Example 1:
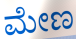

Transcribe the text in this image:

ಮೇಣ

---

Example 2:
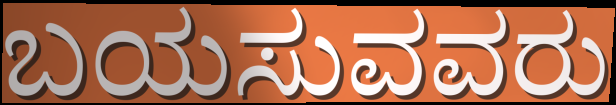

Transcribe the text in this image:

ಬಯಸುವವರು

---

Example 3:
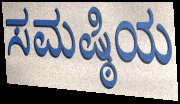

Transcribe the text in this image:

ಸಮಷ್ಠಿಯ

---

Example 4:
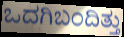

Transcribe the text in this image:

ಒದಗಿಬಂದಿತ್ತು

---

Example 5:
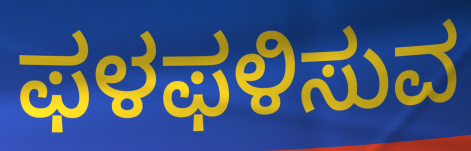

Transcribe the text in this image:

ಫಳಫಳಿಸುವ